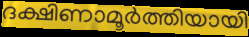
ദക്ഷിണാമൂർത്തിയായി